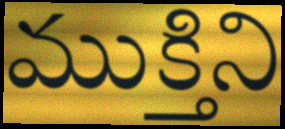
ముక్తిని